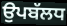
ਉਪਬੱਲਧ